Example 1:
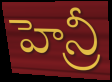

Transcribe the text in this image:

హెన్రీ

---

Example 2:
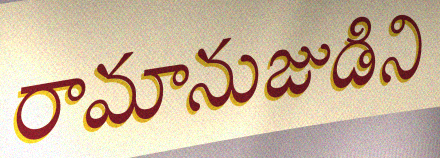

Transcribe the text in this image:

రామానుజుడిని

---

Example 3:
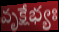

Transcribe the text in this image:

వృక్షేభ్యః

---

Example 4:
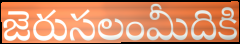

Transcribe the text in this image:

జెరుసలంమీదికి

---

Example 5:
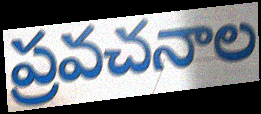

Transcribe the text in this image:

ప్రవచనాల